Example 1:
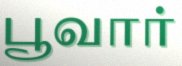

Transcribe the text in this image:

பூவார்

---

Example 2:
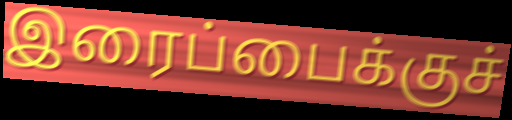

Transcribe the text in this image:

இரைப்பைக்குச்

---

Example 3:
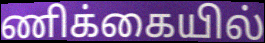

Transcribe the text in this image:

ணிக்கையில்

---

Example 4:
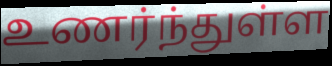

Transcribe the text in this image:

உணர்ந்துள்ள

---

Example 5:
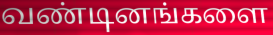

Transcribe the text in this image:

வண்டினங்களை